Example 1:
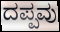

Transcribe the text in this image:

ದಪ್ಪವು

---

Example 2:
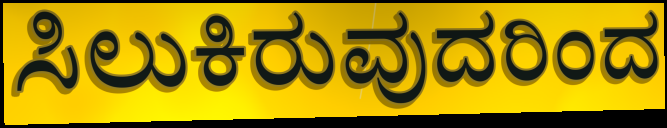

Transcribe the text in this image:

ಸಿಲುಕಿರುವುದರಿಂದ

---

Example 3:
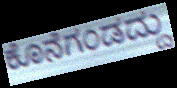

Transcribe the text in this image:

ಕೊನೆಗಂಡದ್ದು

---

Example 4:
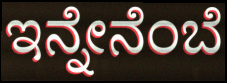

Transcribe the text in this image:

ಇನ್ನೇನೆಂಬೆ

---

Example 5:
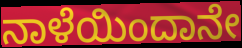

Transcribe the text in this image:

ನಾಳೆಯಿಂದಾನೇ